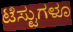
ಟೆಸ್ಟುಗಳೂ